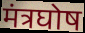
मंत्रघोष